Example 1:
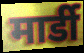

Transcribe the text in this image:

मार्डी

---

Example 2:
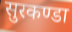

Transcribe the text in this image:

सुरकण्डा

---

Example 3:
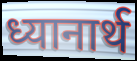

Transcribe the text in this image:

ध्यानार्थ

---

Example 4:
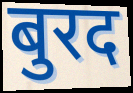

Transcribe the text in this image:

बुरद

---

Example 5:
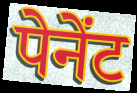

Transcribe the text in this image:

पेनेंट